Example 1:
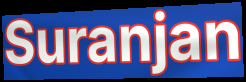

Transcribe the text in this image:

Suranjan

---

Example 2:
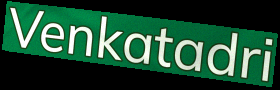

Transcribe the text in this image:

Venkatadri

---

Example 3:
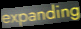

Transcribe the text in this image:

expanding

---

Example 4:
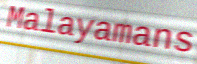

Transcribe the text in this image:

Malayamans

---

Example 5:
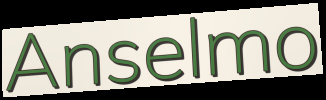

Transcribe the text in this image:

Anselmo